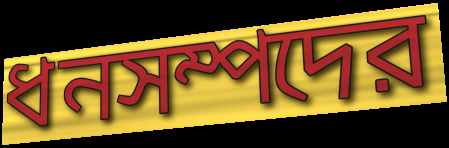
ধনসম্পদের